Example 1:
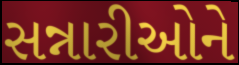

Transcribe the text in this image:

સન્નારીઓને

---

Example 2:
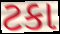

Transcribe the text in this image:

ટકા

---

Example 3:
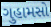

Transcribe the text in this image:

ગુહામસો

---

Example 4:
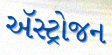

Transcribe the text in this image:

ઍસ્ટ્રોજન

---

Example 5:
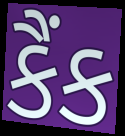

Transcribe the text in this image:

કૈંક